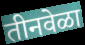
तीनवेळा